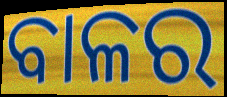
ବାଳର